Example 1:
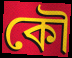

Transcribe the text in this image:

কৌ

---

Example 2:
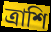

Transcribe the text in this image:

ত্রাশি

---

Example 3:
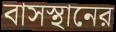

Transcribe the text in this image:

বাসস্থানের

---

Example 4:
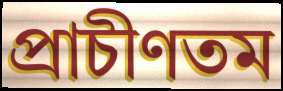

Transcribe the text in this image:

প্রাচীণতম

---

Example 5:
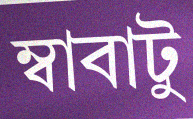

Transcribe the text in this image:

ম্বাবাটু